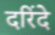
दरिंदे